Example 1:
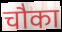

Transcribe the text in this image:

चौका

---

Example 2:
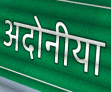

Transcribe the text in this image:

अदोनीया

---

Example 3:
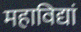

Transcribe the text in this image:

महाविद्यां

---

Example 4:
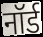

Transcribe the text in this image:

नॉर्ड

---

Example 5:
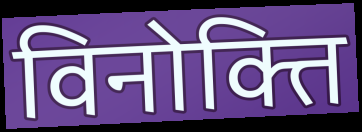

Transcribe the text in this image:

विनोक्ति